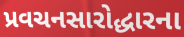
પ્રવચનસારોદ્ધારના